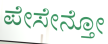
ಪೇಸೇನ್ತೋ